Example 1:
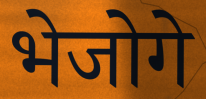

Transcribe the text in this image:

भेजोगे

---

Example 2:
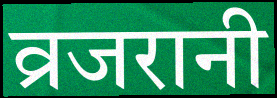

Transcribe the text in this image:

व्रजरानी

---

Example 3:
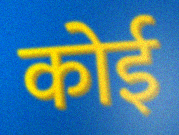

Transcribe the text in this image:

कोई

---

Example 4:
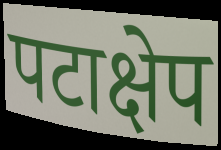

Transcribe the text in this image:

पटाक्षेप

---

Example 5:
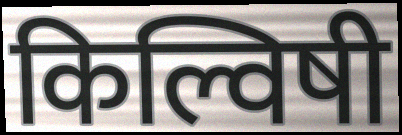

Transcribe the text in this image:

किल्विषी